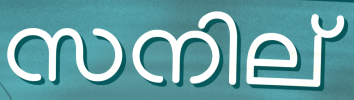
സനില്